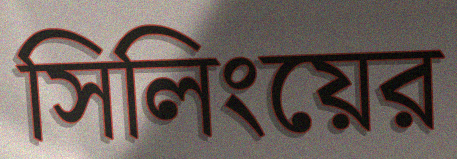
সিলিংয়ের